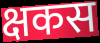
क्षकस